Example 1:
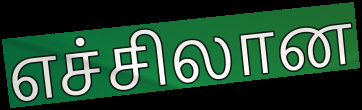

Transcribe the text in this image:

எச்சிலான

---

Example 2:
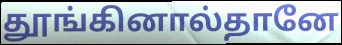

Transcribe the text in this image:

தூங்கினால்தானே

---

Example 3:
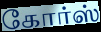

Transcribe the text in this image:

கோர்ஸ்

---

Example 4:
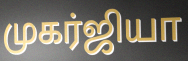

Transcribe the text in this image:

முகர்ஜியா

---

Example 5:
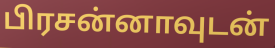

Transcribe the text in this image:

பிரசன்னாவுடன்